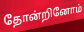
தோன்றினோம்